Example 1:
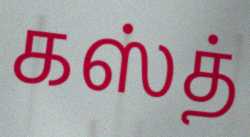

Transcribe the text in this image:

கஸ்த்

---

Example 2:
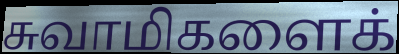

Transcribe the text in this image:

சுவாமிகளைக்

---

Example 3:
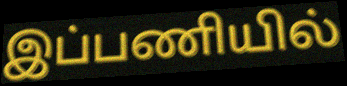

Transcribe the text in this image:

இப்பணியில்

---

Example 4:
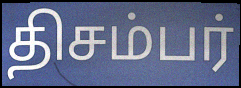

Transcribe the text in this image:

திசம்பர்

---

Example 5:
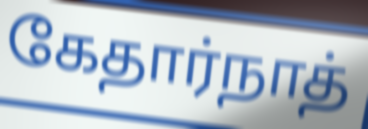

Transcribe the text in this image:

கேதார்நாத்